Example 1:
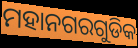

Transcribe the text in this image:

ମହାନଗରଗୁଡିକ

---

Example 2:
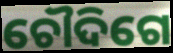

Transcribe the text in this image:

ଚୌଦିଗେ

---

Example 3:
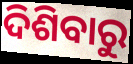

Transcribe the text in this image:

ଦିଶିବାରୁ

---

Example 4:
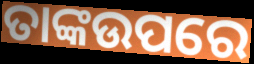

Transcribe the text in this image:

ତାଙ୍କଉପରେ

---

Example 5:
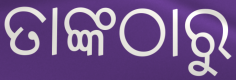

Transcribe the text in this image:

ତାଙ୍କଠାରୁ